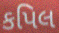
કપિલ